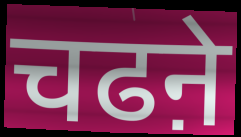
चढऩे